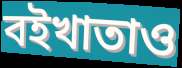
বইখাতাও